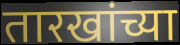
तारखांच्या